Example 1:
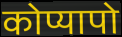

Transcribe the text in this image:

कोप्यापो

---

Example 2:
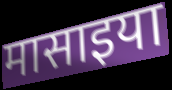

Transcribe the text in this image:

मासाइया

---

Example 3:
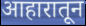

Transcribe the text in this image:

आहारातून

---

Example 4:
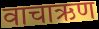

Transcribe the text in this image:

वाचाऋण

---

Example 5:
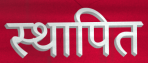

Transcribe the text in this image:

स्थापित